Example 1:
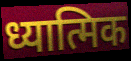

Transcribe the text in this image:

ध्यात्मिक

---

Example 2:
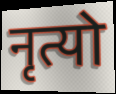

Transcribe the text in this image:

नृत्यो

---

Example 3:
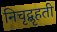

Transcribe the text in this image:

निचृद्बृहती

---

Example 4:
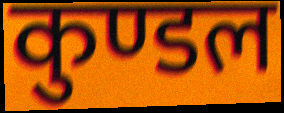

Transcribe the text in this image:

कुण्डल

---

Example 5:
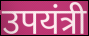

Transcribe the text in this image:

उपयंत्री